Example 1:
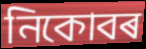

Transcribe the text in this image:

নিকোবৰ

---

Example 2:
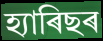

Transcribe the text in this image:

হ্যাৰিছৰ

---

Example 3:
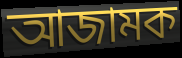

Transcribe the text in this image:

আজামক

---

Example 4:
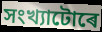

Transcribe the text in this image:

সংখ্যাটোৰে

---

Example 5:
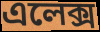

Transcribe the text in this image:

এলেক্স